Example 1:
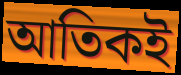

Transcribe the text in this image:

আতিকই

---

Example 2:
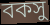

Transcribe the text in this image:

বকসু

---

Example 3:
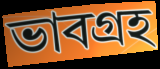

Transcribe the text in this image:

ভাবগ্রহ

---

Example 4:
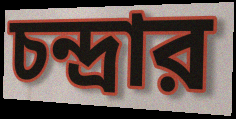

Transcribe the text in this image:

চন্দ্রার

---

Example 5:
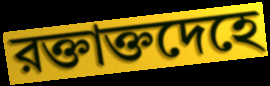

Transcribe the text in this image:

রক্তাক্তদেহে